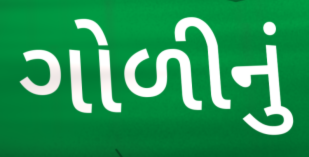
ગોળીનું